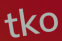
tko